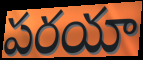
పరయా